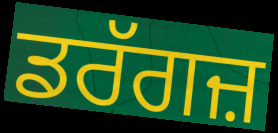
ਡਰੱਗਜ਼